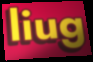
liug